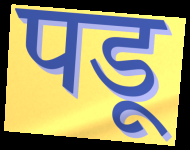
पडू